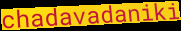
chadavadaniki